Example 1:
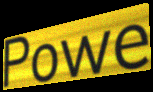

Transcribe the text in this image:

Powe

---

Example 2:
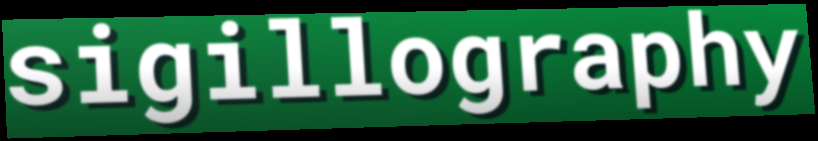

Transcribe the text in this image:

sigillography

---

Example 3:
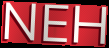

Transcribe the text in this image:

NEH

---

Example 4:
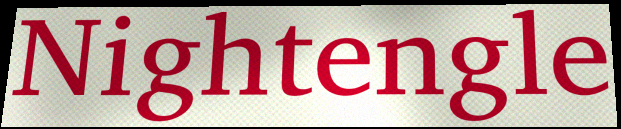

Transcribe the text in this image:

Nightengle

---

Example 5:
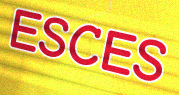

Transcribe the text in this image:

ESCES